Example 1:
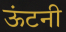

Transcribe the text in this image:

ऊंटनी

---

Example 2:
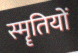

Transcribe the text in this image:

स्मॄतियों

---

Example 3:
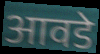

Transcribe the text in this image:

आवडे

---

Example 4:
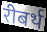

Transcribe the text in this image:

रीबर्थ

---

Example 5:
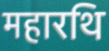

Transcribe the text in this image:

महारथि